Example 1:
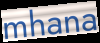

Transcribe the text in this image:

mhana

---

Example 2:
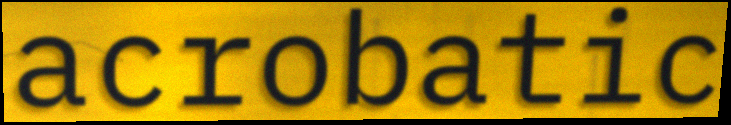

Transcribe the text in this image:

acrobatic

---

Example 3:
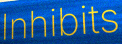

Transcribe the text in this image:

Inhibits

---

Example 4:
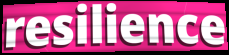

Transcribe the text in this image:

resilience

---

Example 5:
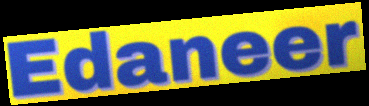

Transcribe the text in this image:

Edaneer